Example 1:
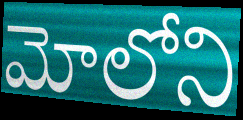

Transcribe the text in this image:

మోలోని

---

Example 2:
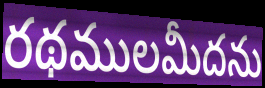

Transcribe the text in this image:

రథములమీదను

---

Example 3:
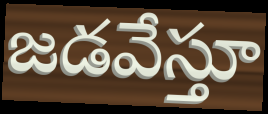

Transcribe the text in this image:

జడవేస్తూ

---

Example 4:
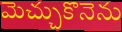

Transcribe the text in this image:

మెచ్చుకొనెను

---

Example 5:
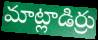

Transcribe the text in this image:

మాట్లాడిర్రు